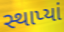
સ્થાપ્યાં